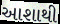
આશાથી